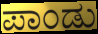
ಪಾಂಡು